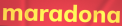
maradona